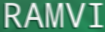
RAMVI